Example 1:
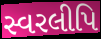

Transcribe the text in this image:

સ્વરલીપિ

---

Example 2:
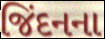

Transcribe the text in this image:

જિંદનના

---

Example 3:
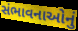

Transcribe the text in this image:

સંભાવનાઓનું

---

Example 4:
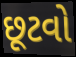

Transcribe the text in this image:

છૂટવો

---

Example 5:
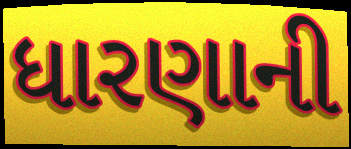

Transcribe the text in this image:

ધારણાની